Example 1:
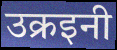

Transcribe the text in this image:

उक्रइनी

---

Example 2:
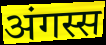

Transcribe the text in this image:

अंगस्स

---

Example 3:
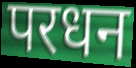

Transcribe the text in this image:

परधन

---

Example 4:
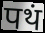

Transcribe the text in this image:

पथं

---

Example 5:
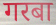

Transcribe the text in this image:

गरबा